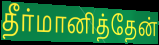
தீர்மானித்தேன்